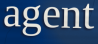
agent